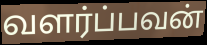
வளர்ப்பவன்